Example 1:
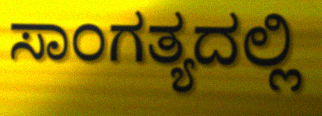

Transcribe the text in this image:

ಸಾಂಗತ್ಯದಲ್ಲಿ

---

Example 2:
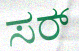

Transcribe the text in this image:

ಸರ‍್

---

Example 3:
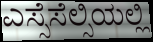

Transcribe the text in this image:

ಎಸ್ಸೆಸೆಲ್ಸಿಯಲ್ಲಿ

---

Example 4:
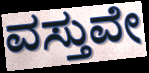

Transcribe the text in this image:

ವಸ್ತುವೇ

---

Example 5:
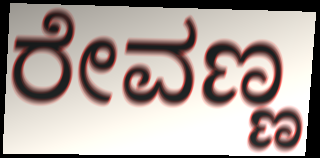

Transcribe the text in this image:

ರೇವಣ್ಣ